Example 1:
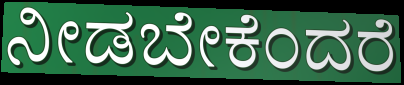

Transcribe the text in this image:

ನೀಡಬೇಕೆಂದರೆ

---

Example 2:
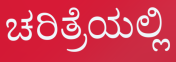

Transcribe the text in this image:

ಚರಿತ್ರೆಯಲ್ಲಿ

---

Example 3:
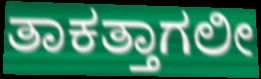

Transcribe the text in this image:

ತಾಕತ್ತಾಗಲೀ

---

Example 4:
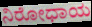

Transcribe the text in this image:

ನಿರೋಧಾಯ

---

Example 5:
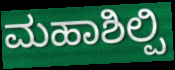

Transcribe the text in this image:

ಮಹಾಶಿಲ್ಪಿ